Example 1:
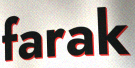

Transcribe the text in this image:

farak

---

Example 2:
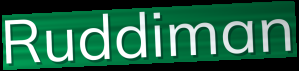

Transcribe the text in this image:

Ruddiman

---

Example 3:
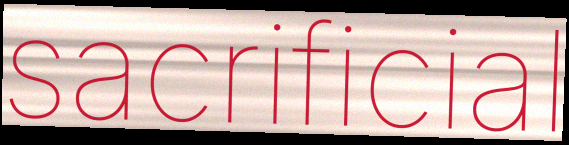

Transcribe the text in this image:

sacrificial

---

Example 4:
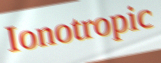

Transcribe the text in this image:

Ionotropic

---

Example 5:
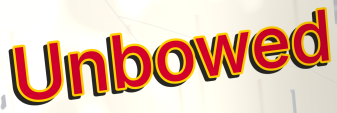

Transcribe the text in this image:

Unbowed